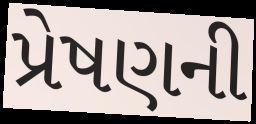
પ્રેષણની